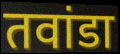
तवांडा